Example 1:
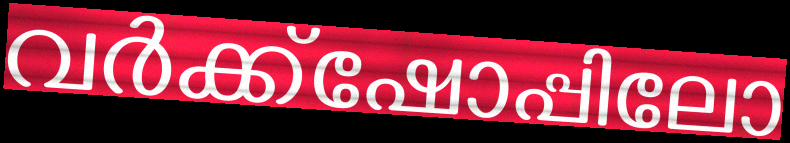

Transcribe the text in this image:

വർക്ക്ഷോപ്പിലോ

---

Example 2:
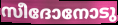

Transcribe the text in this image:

സീദോനോടു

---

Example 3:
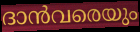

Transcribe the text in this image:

ദാൻവരെയും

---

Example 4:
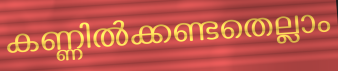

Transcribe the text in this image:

കണ്ണിൽക്കണ്ടതെല്ലാം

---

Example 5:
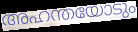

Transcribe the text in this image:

അഹന്തയോടും